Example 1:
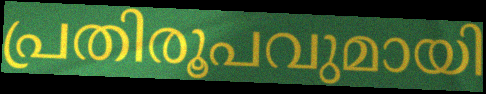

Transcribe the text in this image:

പ്രതിരൂപവുമായി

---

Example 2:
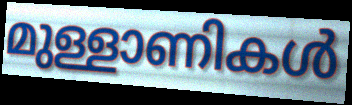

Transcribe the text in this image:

മുള്ളാണികൾ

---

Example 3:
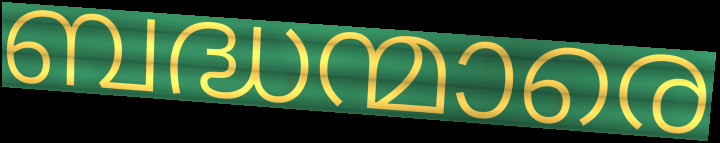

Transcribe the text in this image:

ബദ്ധന്മാരെ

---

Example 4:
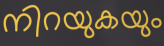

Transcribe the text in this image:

നിറയുകയും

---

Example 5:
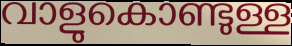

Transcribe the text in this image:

വാളുകൊണ്ടുള്ള